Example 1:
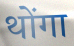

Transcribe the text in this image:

थोंगा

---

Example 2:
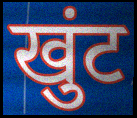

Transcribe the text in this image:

खुंट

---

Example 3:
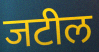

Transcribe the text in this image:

जटील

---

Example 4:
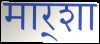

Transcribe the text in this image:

मार्शा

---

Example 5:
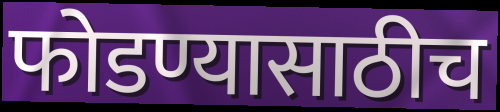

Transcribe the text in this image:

फोडण्यासाठीच